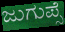
ಜುಗುಪ್ಸೆ